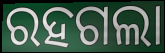
ରହଗଲା